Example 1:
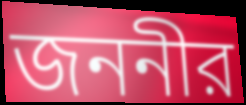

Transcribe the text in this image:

জননীর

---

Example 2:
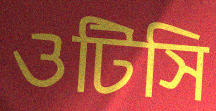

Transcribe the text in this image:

ওটিসি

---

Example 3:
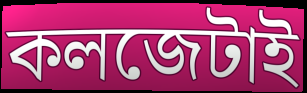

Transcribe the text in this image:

কলজেটাই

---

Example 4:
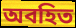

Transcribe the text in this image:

অবহিত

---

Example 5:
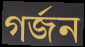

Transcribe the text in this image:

গর্জন